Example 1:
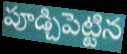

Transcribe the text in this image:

పూడ్చిపెట్టిన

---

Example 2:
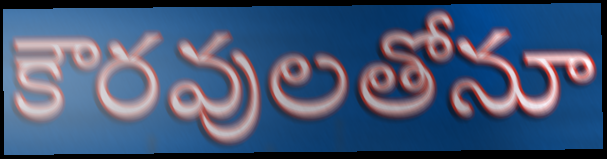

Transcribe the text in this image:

కౌరవులతోనూ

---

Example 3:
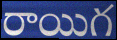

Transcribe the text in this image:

రాయిగ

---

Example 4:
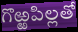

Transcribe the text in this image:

గొఱ్ఱపిల్లతో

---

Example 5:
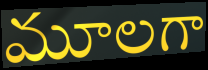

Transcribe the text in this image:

మూలగా